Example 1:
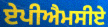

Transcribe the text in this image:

ਏਪੀਐਮਸੀਏ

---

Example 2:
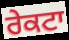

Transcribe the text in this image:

ਰੇਕਟਾ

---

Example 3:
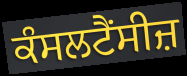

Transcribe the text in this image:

ਕੰਸਲਟੈਂਸੀਜ਼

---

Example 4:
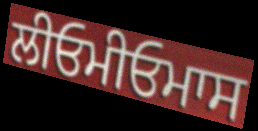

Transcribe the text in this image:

ਲੀਓਮੀਓਮਾਸ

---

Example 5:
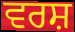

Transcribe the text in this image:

ਵਰਸ਼